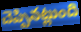
చెప్పినట్లుంది